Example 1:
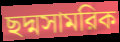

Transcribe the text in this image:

ছদ্মসামরিক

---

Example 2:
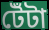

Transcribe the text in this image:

টেঁটা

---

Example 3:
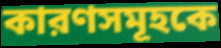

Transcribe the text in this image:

কারণসমূহকে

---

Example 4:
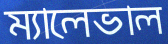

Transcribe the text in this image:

ম্যালেভাল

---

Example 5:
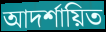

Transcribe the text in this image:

আদর্শায়িত